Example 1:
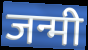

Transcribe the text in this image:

जन्मी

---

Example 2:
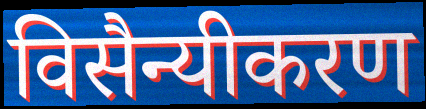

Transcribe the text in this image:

विसैन्यीकरण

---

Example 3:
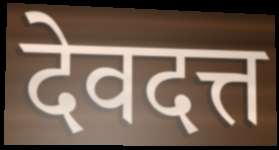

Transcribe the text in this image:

देवदत्त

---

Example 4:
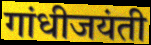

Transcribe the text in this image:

गांधीजयंती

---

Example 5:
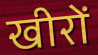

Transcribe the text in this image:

खीरों